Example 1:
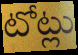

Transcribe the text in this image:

టోట్లు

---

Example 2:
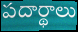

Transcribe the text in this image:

పదార్థాలు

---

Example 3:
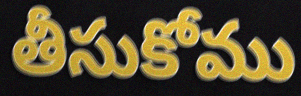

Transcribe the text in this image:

తీసుకోము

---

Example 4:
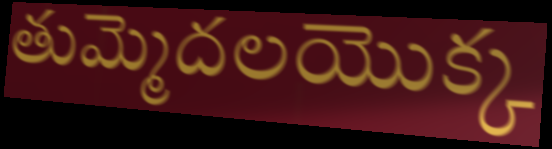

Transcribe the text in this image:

తుమ్మెదలయొక్క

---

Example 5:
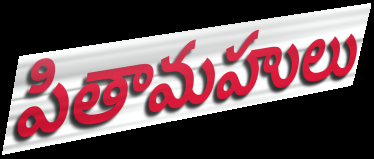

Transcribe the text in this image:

పితామహులు